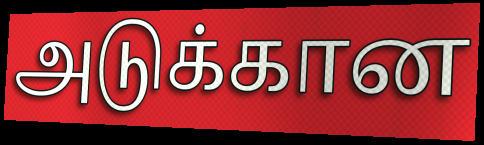
அடுக்கான